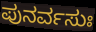
ಪುನರ್ವಸುಃ